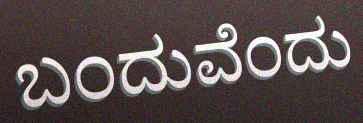
ಬಂದುವೆಂದು